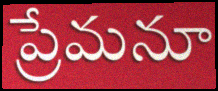
ప్రేమనూ